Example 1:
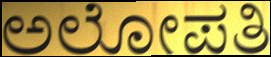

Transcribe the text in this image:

ಅಲೋಪತಿ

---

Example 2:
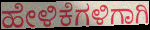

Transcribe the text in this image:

ಹೇಳಿಕೆಗಳಿಗಾಗಿ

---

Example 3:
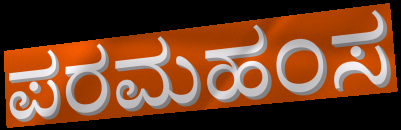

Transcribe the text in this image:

ಪರಮಹಂಸ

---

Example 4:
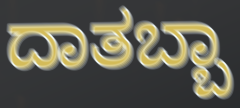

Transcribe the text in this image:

ದಾತಬ್ಬಾ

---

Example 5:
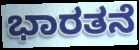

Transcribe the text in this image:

ಭಾರತನೆ